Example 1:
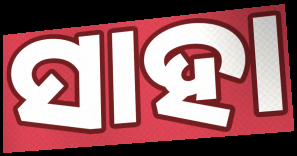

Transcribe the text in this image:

ସାହା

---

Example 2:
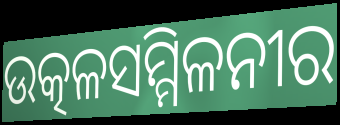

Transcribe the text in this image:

ଉତ୍କଳସମ୍ମିଳନୀର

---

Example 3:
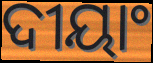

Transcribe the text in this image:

ଦୀୟାଂ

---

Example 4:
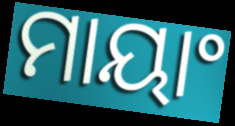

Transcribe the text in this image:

ମାୟାଂ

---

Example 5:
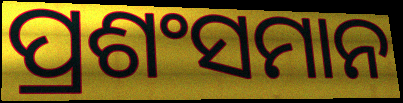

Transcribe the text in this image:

ପ୍ରଶଂସମାନ